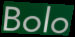
Bolo